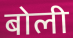
बोली